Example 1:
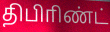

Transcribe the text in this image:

திபிரிண்ட்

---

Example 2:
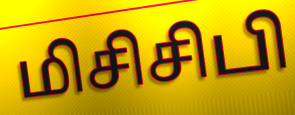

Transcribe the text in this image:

மிசிசிபி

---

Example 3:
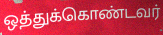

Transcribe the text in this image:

ஒத்துக்கொண்டவர்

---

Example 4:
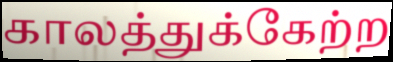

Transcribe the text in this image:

காலத்துக்கேற்ற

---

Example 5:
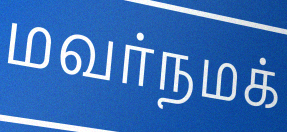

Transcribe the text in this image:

மவர்நமக்